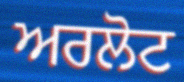
ਅਰਲੋਟ